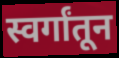
स्वर्गांतून